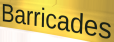
Barricades